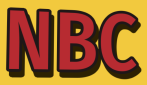
NBC